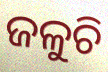
ଜଳୁଚି